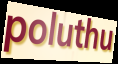
poluthu